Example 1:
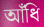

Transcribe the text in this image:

আঁধি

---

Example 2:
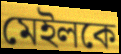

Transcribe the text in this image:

মেইলকে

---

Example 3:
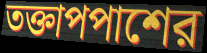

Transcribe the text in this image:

তক্তাপপাশের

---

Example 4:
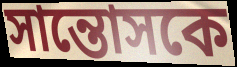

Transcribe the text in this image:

সান্তোসকে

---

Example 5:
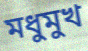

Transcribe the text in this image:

মধুমুখ